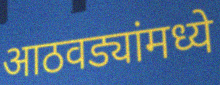
आठवड्यांमध्ये